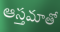
ఆస్తమాతో